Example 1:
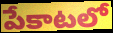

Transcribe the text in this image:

పేకాటలో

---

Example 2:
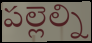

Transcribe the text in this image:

పల్లెల్ని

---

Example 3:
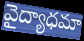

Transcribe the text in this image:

వైద్యాధమా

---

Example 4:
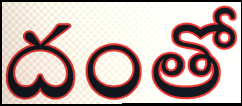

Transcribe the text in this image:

దంతో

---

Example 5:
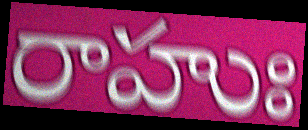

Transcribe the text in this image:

రాహుః